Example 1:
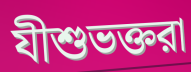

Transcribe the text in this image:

যীশুভক্তরা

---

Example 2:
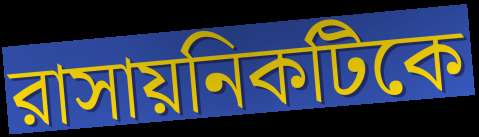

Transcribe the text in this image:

রাসায়নিকটিকে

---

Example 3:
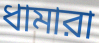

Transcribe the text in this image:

ধামারা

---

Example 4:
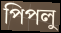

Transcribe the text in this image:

পিপলু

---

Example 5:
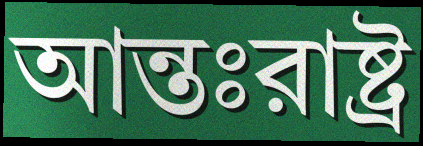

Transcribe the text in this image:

আন্তঃরাষ্ট্র